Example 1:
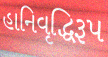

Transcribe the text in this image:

હાનિવૃદ્ધિરૂપ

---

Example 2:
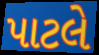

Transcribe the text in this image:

પાટલે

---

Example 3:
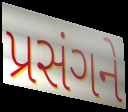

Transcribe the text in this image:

પ્રસંગને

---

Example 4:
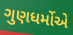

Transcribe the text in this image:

ગુણધર્મોએ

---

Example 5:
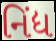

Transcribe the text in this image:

નિંદ્ય